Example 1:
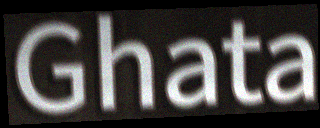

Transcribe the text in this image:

Ghata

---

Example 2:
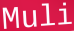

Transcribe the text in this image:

Muli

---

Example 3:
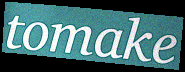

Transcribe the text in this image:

tomake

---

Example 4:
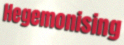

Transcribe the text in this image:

Hegemonising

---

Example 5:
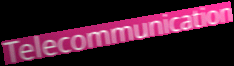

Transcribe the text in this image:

Telecommunication